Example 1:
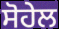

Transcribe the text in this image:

ਸੋਹੇਲ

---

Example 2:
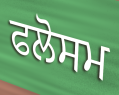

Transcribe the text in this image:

ਫਲੋਸਮ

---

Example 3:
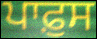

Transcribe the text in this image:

ਪਾਫ਼ੁਸ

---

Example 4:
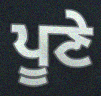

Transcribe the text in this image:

ਪੂਣੇ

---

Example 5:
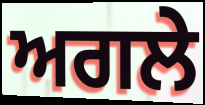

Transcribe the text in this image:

ਅਗਲੇ